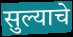
सुल्याचे